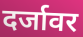
दर्जावर